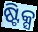
ଷ୍ଟିକ୍ସ